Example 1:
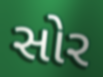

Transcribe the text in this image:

સોર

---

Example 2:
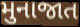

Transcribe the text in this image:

મુનાજાત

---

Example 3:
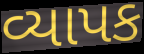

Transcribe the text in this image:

વ્યાપક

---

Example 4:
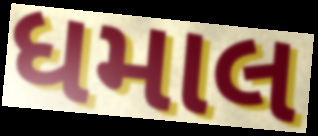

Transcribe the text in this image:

ધમાલ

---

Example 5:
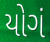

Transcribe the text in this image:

યોગં